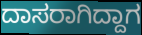
ದಾಸರಾಗಿದ್ದಾಗ